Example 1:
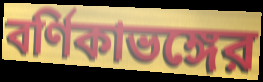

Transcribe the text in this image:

বর্ণিকাভঙ্গের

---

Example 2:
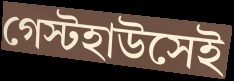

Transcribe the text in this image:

গেস্টহাউসেই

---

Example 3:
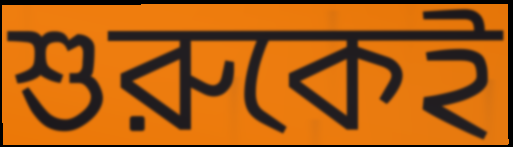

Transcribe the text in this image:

শুরুকেই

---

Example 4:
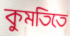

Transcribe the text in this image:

কুমতিতে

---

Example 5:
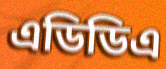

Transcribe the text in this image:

এডিডিএ